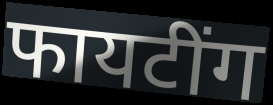
फायटींग